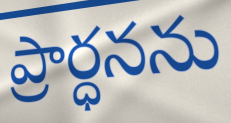
ప్రార్ధనను